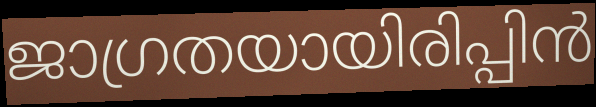
ജാഗ്രതയായിരിപ്പിൻ